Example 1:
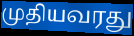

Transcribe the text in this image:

முதியவரது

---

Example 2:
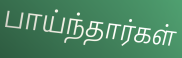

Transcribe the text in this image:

பாய்ந்தார்கள்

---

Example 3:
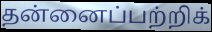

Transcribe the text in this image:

தன்னைப்பற்றிக்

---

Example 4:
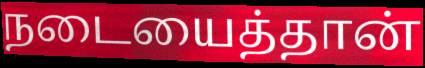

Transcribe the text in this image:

நடையைத்தான்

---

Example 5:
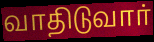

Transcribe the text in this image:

வாதிடுவார்